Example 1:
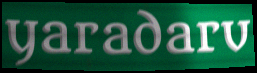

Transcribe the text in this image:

yaradaru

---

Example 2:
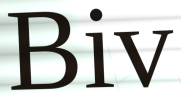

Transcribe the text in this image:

Biv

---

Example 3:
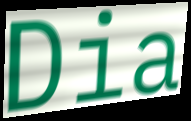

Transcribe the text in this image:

Dia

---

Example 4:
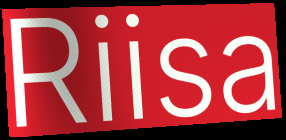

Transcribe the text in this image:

Riisa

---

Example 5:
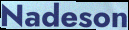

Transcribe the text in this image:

Nadeson